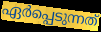
ഏർപ്പെടുന്നത്